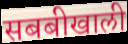
सबबीखाली